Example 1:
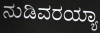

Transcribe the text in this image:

ನುಡಿವರಯ್ಯಾ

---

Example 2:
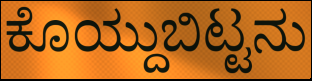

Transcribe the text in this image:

ಕೊಯ್ದುಬಿಟ್ಟನು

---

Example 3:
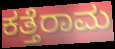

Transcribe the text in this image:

ಕತ್ತೆರಾಮ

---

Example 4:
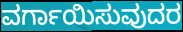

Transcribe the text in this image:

ವರ್ಗಾಯಿಸುವುದರ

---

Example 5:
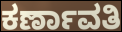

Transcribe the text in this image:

ಕರ್ಣಾವತಿ